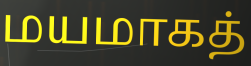
மயமாகத்